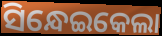
ସିନ୍ଧେଇକେଲା